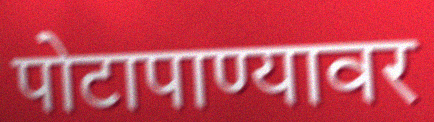
पोटापाण्यावर